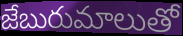
జేబురుమాలుతో